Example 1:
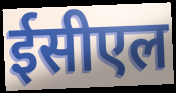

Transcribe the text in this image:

ईसीएल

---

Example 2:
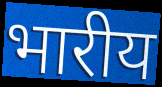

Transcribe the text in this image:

भारीय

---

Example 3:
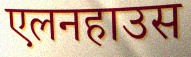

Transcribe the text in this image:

एलनहाउस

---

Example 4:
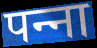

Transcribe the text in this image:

पन्‍ना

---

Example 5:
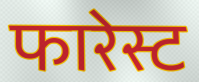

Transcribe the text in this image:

फारेस्‍ट